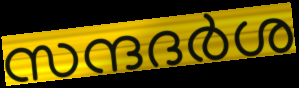
സന്ദദർശ